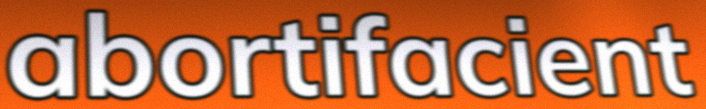
abortifacient